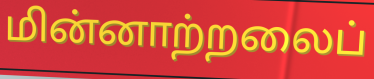
மின்னாற்றலைப்